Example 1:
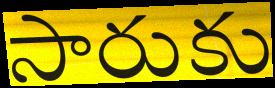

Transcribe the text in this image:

సారుకు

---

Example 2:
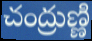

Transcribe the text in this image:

చంద్రుణ్ణి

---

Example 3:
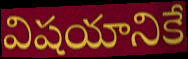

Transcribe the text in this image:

విషయానికే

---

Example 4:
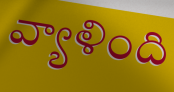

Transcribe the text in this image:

వ్యాళింది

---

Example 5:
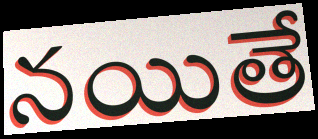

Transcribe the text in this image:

నయితే